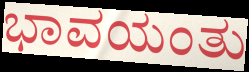
ಭಾವಯಂತು